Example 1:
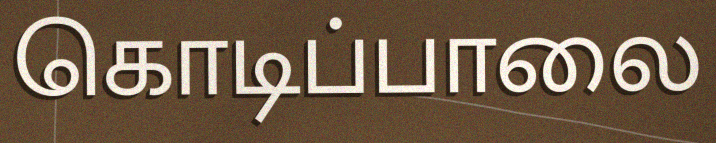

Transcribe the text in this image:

கொடிப்பாலை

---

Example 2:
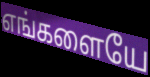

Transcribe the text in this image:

எங்களையே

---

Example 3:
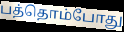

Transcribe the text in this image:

பத்தொம்போது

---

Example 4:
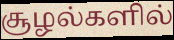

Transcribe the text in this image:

சூழல்களில்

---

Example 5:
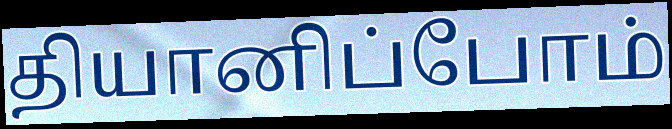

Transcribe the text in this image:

தியானிப்போம்